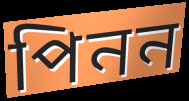
পিনন